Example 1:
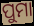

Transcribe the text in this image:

ପୁମା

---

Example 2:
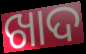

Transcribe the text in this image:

ଖାଦ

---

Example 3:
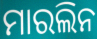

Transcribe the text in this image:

ମାରଲିନ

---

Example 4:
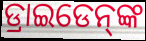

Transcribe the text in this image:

ଡ୍ରାଇଡେନ୍‌ଙ୍କ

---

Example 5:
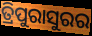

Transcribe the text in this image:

ତ୍ରିପୁରାସୁରର